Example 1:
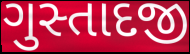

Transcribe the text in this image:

ગુસ્તાદજી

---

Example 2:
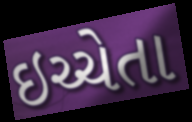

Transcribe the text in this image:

ઇચ્ચેતા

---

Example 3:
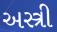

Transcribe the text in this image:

અસ્ત્રી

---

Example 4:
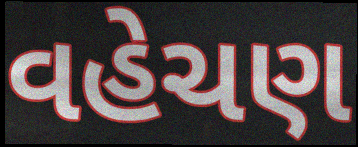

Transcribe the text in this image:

વહેચણ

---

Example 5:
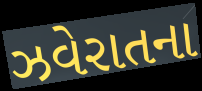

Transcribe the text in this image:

ઝવેરાતના